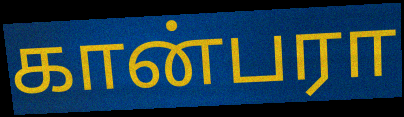
கான்பரா